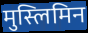
मुस्लिमिन